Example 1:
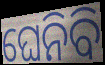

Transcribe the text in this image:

ଘେନିବି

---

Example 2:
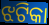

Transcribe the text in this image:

ଝଟିକା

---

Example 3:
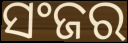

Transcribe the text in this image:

ସଂଜର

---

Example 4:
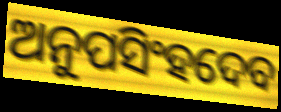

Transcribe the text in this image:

ଅନୁପସିଂହଦେବ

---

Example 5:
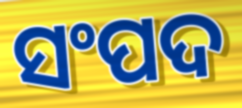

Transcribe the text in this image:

ସଂପଦ